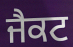
ਜੈਕਟ